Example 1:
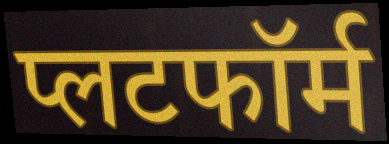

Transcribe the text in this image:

प्लटफॉर्म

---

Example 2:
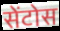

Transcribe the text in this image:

सेंटोस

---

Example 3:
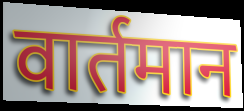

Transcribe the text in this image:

वार्तमान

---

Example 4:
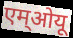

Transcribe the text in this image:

एम्ओयू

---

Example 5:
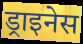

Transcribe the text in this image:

ड्राइनेस